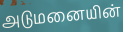
அடுமனையின்